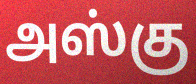
அஸ்கு